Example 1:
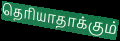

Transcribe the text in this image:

தெரியாதாக்கும்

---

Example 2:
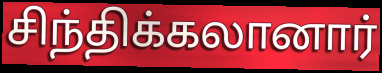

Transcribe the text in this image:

சிந்திக்கலானார்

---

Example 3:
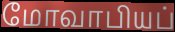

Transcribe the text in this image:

மோவாபியப்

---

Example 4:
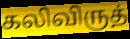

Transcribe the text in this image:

கலிவிருத்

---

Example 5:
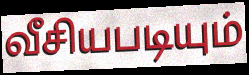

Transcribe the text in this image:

வீசியபடியும்